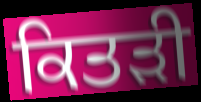
ਕਿਤੜੀ